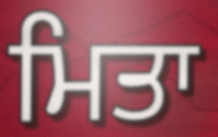
ਮਿਤਾ